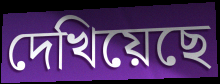
দেখিয়েছে